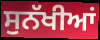
ਸੁਨੱਖੀਆਂ